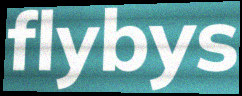
flybys